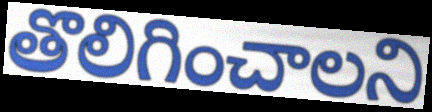
తొలిగించాలని